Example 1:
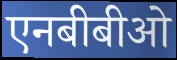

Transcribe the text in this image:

एनबीबीओ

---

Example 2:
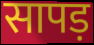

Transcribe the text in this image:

सापड़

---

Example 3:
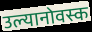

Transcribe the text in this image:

उल्यानोवस्क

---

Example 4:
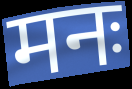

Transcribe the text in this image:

मनः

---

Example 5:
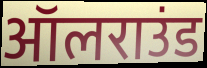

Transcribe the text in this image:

ऑलराउंड